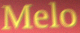
Melo